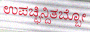
ಉಪಚ್ಛಿನ್ದಿತಬ್ಬೋ